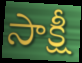
సాక్షీ